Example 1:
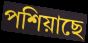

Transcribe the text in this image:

পশিয়াছে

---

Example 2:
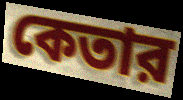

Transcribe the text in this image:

কেতার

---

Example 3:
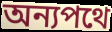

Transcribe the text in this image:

অন্যপথে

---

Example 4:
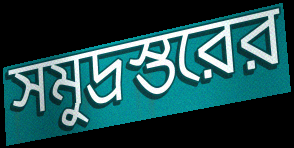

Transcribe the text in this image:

সমুদ্রস্তরের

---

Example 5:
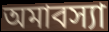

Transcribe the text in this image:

অমাবস্যা